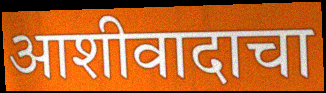
आशीवादाचा